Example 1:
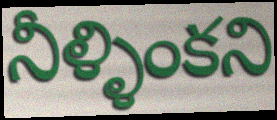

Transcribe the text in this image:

నీళ్ళింకని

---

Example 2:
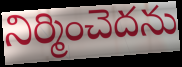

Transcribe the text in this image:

నిర్మించెదను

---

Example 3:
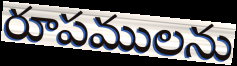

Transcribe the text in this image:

రూపములను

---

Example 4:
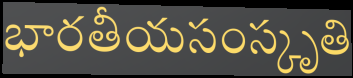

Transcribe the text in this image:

భారతీయసంస్కృతి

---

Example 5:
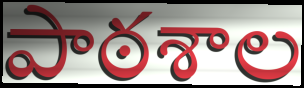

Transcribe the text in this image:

పాఠశాల